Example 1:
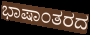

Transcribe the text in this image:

ಭಾಷಾಂತರದ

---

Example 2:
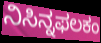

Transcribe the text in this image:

ನಿಸಿನ್ನಫಲಕಂ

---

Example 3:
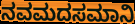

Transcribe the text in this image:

ನವಮದಸಮಾನಿ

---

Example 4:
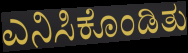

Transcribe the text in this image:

ಎನಿಸಿಕೊಂಡಿತು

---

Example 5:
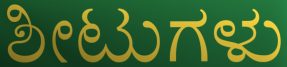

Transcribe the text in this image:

ಶೀಟುಗಳು